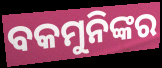
ବକମୁନିଙ୍କର